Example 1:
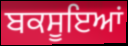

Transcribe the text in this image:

ਬਕਸੂਇਆਂ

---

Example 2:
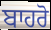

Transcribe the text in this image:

ਬਾਹਰੋ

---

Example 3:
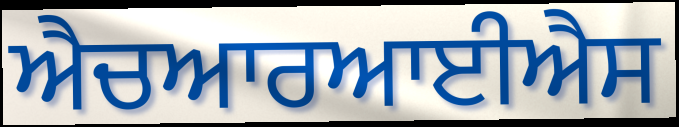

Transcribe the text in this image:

ਐਚਆਰਆਈਐਸ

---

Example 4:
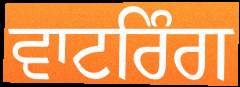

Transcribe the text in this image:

ਵਾਟਰਿੰਗ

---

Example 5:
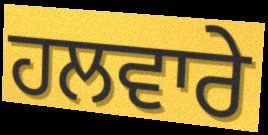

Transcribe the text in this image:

ਹਲਵਾਰੇ